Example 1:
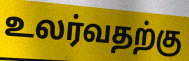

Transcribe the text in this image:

உலர்வதற்கு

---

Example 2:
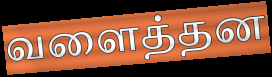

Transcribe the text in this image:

வளைத்தன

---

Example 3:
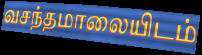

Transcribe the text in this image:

வசந்தமாலையிடம்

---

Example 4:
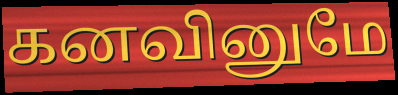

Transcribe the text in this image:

கனவினுமே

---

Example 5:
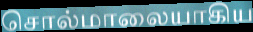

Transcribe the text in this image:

சொல்மாலையாகிய